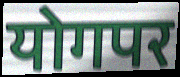
योगपर